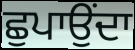
ਛੁਪਾਉਂਦਾ